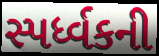
સ્પર્ધ્વકની